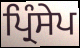
ਪ੍ਰਿੰਸੇਪ